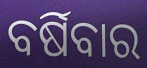
ବର୍ଷିବାର